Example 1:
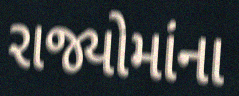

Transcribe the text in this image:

રાજ્યોમાંના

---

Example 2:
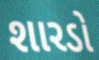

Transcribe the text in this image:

શારડો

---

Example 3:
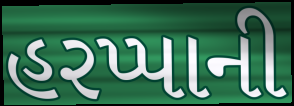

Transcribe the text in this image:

હરપ્પાની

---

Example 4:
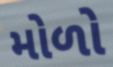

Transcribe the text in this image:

મોળો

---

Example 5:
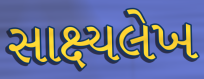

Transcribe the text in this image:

સાક્ષ્યલેખ